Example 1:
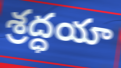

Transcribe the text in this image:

శ్రద్ధయా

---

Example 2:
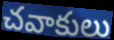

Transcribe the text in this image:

చవాకులు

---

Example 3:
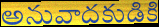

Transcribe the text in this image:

అనువాదకుడికి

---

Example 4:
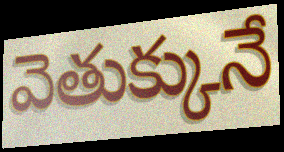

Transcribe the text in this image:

వెతుక్కునే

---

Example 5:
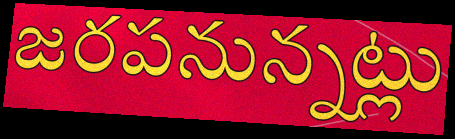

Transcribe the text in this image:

జరపనున్నట్లు